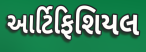
આર્ટિફિશિયલ